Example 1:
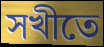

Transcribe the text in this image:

সখীতে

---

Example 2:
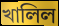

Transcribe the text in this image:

খালিল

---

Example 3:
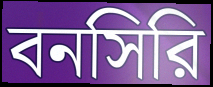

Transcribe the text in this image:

বনসিরি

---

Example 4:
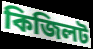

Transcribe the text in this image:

কিজিলট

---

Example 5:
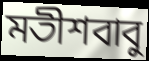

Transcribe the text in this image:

মতীশবাবু